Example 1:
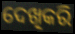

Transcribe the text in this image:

ଦେଖିକରି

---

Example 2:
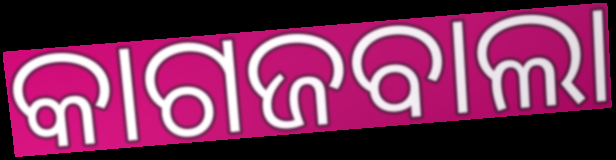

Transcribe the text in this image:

କାଗଜବାଲା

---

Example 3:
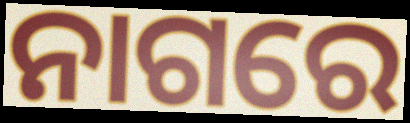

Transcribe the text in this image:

ନାଗରେ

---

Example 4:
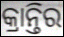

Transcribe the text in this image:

କ୍ରାନ୍ତିର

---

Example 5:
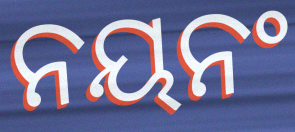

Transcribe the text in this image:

ନୟନଂ